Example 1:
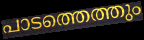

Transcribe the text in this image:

പാടത്തെത്തും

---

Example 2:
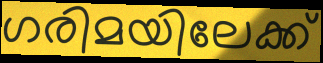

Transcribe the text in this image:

ഗരിമയിലേക്ക്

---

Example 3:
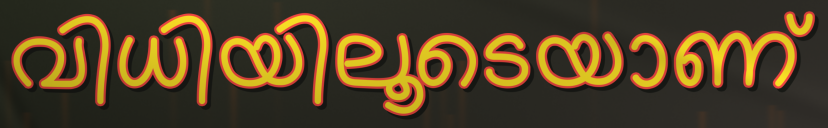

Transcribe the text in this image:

വിധിയിലൂടെയാണ്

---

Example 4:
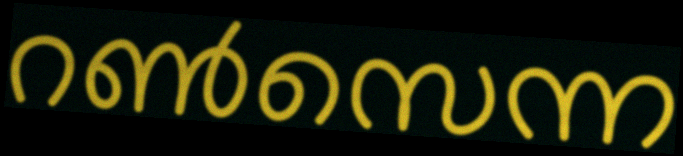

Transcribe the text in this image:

റൺസെന്ന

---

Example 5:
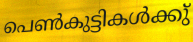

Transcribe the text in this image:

പെൺകുട്ടികൾക്കു്